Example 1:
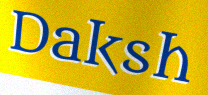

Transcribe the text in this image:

Daksh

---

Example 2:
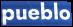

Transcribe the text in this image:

pueblo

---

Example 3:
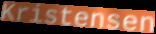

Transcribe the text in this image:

Kristensen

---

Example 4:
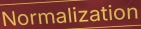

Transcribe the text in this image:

Normalization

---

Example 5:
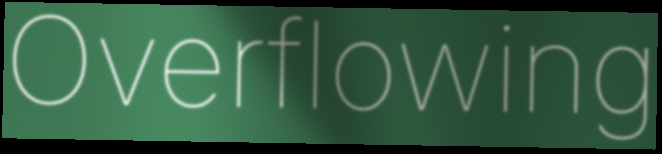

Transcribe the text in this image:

Overflowing